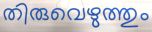
തിരുവെഴുത്തും